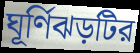
ঘূর্ণিঝড়টির